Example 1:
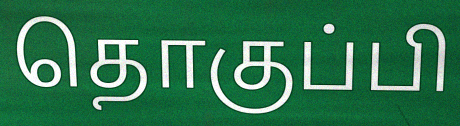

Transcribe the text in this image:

தொகுப்பி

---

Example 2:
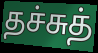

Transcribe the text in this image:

தச்சுத்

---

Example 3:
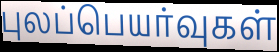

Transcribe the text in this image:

புலப்பெயர்வுகள்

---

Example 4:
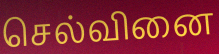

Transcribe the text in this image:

செல்வினை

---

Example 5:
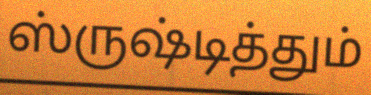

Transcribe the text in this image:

ஸ்ருஷ்டித்தும்